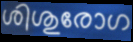
ശിശുരോഗ